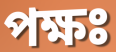
পক্ষঃ